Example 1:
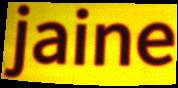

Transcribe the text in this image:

jaine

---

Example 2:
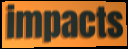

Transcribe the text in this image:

impacts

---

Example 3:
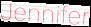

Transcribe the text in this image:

Jennifer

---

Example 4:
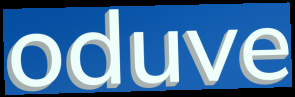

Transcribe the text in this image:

oduve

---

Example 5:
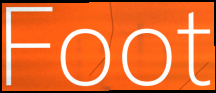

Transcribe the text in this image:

Foot